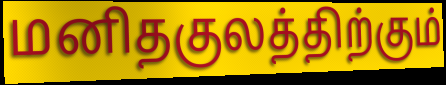
மனிதகுலத்திற்கும்